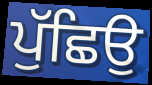
ਪੁੱਛਿਉ